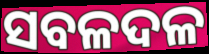
ସବଳଦଳ